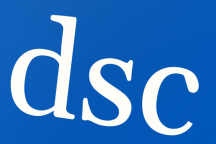
dsc